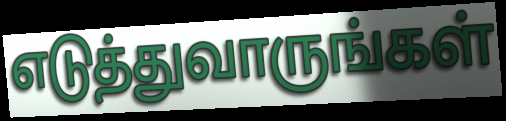
எடுத்துவாருங்கள்